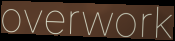
overwork